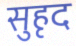
सुहृद